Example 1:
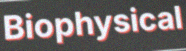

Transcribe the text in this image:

Biophysical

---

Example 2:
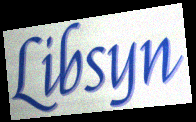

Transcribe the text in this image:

Libsyn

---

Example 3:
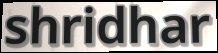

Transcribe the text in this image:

shridhar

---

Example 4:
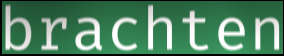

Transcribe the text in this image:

brachten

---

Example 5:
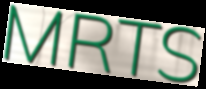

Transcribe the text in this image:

MRTS